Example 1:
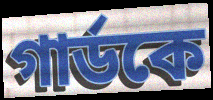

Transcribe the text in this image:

গার্ডকে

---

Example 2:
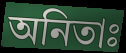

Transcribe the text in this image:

অনিতাঃ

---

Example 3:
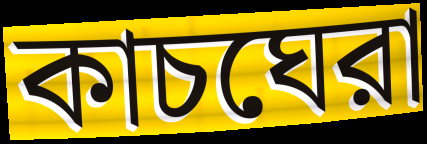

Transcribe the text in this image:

কাচঘেরা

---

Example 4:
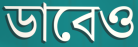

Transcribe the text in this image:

ডাবেও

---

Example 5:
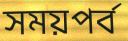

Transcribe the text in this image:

সময়পর্ব